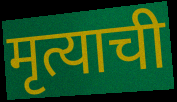
मृत्याची